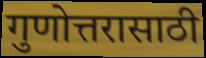
गुणोत्तरासाठी